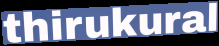
thirukural